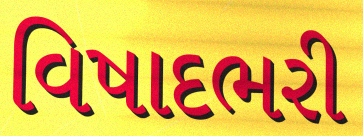
વિષાદભરી